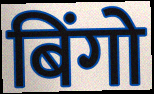
बिंगो